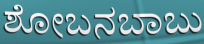
ಶೋಬನಬಾಬು